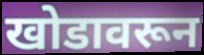
खोडावरून